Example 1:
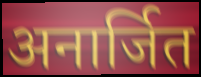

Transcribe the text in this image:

अनार्जित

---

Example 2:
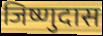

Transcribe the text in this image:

जिष्णुदास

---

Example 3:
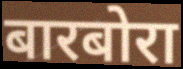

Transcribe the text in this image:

बारबोरा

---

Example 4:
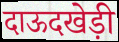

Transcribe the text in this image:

दाऊदखेड़ी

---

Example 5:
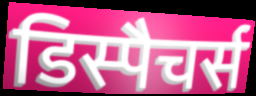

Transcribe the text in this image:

डिस्पैचर्स